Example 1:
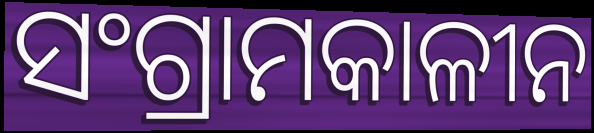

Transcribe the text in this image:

ସଂଗ୍ରାମକାଳୀନ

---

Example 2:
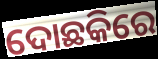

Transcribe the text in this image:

ଦୋଛକିରେ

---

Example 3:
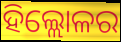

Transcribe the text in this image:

ହିଲ୍ଲୋଳର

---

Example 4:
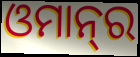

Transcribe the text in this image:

ଓମାନ୍‌ର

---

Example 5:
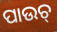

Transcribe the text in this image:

ପାଉଚ୍